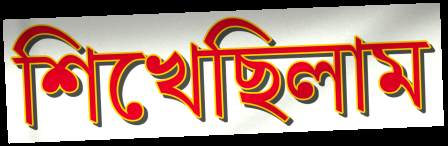
শিখেছিলাম